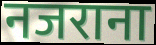
नजराना